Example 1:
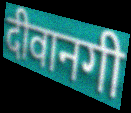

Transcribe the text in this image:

दीवानगी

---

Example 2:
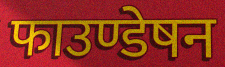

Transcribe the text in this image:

फाउण्डेषन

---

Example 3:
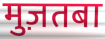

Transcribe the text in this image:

मुज़तबा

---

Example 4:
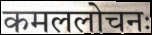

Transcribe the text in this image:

कमललोचनः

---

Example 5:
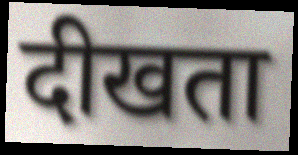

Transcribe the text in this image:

दीखता